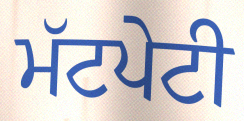
ਮੱਟਪੇਟੀ